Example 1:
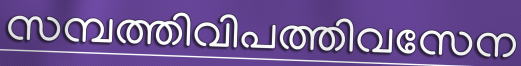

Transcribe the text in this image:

സമ്പത്തിവിപത്തിവസേന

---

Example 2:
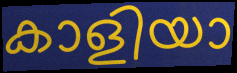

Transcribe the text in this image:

കാളിയാ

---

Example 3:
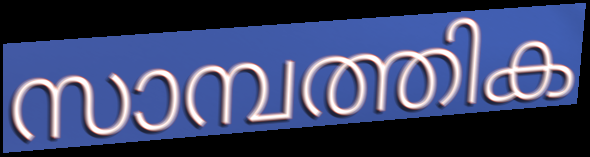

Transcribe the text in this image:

സാമ്പത്തിക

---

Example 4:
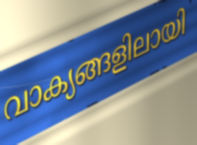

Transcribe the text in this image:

വാക്യങ്ങളിലായി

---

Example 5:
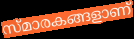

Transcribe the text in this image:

സ്മാരകങ്ങളാണ്